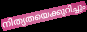
നിത്യതയെക്കുറിച്ചും